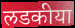
लडकीया